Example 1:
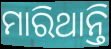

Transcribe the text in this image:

ମାରିଥାନ୍ତି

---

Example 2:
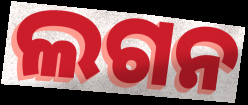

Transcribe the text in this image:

ଲଗନ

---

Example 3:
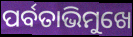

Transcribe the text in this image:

ପର୍ବତାଭିମୁଖେ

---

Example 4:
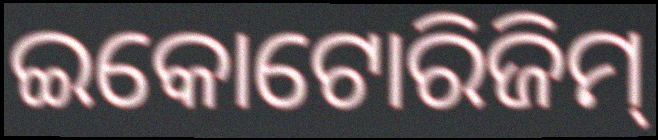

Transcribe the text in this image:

ଇକୋଟୋରିଜିମ୍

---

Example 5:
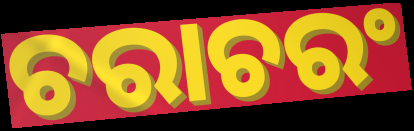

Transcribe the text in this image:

ଚରାଚରଂ